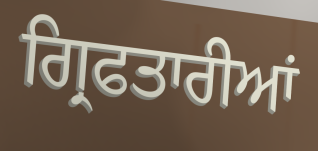
ਗ੍ਰਿਫਤਾਰੀਆਂ